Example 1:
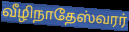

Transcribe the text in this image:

வீழிநாதேஸ்வரர்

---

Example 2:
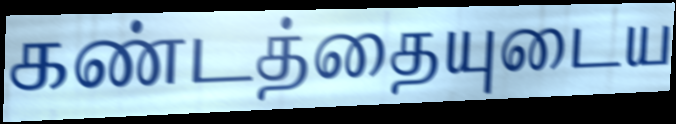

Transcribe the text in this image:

கண்டத்தையுடைய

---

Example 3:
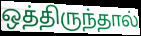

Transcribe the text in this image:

ஒத்திருந்தால்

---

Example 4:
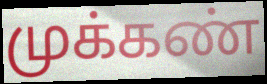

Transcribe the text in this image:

முக்கண்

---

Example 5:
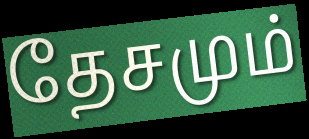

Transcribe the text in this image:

தேசமும்